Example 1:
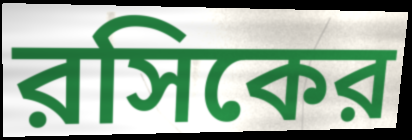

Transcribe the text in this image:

রসিকের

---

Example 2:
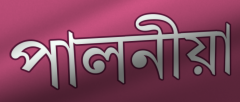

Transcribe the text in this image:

পালনীয়া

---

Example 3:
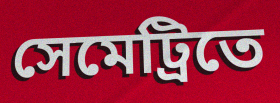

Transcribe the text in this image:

সেমেট্রিতে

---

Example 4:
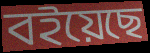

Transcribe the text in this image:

বইয়েছে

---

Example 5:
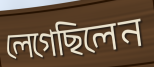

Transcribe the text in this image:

লেগেছিলেন